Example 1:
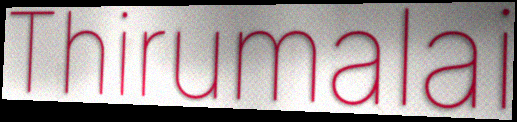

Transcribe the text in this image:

Thirumalai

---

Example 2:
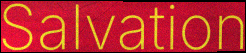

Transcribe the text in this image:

Salvation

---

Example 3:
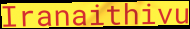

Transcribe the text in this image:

Iranaithivu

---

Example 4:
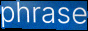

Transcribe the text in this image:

phrase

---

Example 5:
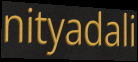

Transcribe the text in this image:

nityadali